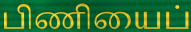
பிணியைப்